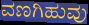
ವಣಗಿಹುವು